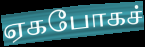
ஏகபோகச்